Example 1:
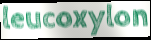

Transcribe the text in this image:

leucoxylon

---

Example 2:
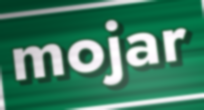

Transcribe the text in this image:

mojar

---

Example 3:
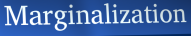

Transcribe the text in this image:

Marginalization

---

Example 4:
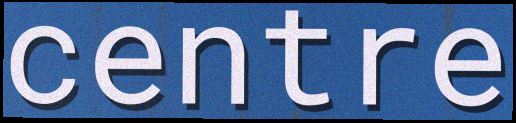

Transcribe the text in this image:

centre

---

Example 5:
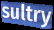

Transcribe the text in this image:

sultry